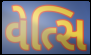
વેત્સિ